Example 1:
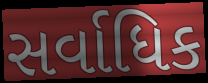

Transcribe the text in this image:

સર્વાધિક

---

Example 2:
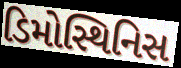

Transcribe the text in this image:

ડિમોસ્થિનિસ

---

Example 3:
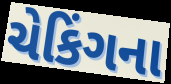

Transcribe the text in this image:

ચેકિંગના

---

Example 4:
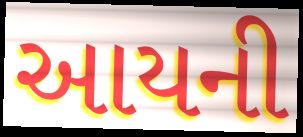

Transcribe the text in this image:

આયની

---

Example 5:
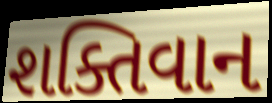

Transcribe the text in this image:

શક્તિવાન